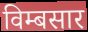
विम्बसार